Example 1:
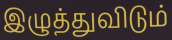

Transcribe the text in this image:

இழுத்துவிடும்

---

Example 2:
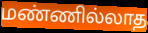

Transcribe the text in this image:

மண்ணில்லாத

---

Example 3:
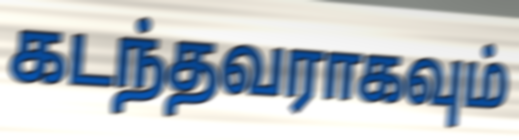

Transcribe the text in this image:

கடந்தவராகவும்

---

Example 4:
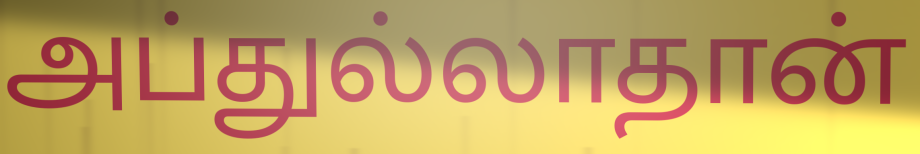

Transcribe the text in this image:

அப்துல்லாதான்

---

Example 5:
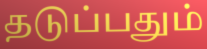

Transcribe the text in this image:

தடுப்பதும்